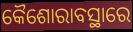
କୈଶୋରାବସ୍ଥାରେ